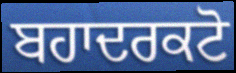
ਬਹਾਦਰਕਟੋ